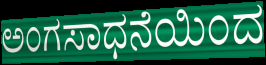
ಅಂಗಸಾಧನೆಯಿಂದ